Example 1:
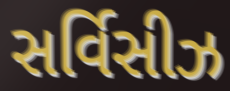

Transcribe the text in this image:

સર્વિસીઝ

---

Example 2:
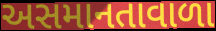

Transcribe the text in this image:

અસમાનતાવાળા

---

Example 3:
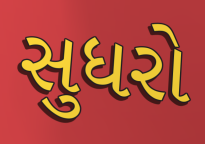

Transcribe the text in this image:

સુધરો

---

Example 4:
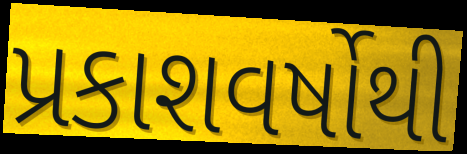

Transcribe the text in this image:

પ્રકાશવર્ષોથી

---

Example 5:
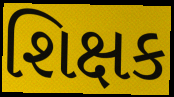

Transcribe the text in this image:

શિક્ષક